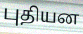
புதியன